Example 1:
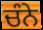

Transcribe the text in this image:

ਚੰਨੇ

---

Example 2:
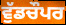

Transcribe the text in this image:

ਵੁੱਡਚੌਪਰ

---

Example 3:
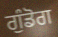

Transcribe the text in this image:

ਗੁੰਡੋਗ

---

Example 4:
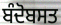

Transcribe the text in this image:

ਬੰਦੋਬਸਤ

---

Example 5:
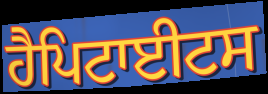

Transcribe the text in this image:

ਹੈਪਿਟਾਈਟਸ